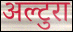
अल्टुरा